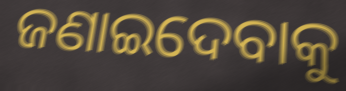
ଜଣାଇଦେବାକୁ